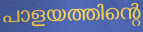
പാളയത്തിന്റെ